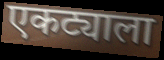
एकट्याला